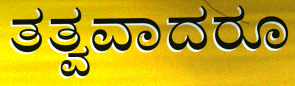
ತತ್ವವಾದರೂ